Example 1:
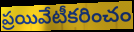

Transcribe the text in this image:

ప్రయివేటీకరించం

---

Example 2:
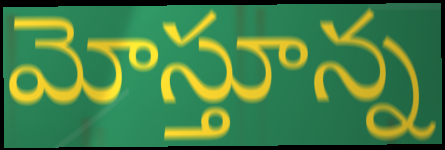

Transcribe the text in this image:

మోస్తూన్న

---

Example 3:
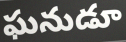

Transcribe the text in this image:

ఘనుడూ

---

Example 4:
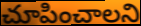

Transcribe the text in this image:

చూపించాలని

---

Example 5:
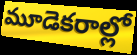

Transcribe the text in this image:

మూడెకరాల్లో